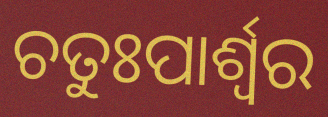
ଚତୁଃପାର୍ଶ୍ଵର